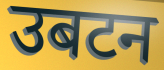
उबटन